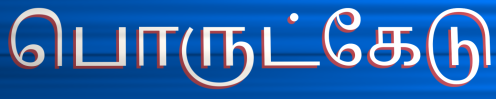
பொருட்கேடு